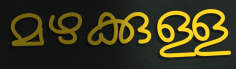
മഴക്കുള്ള